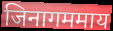
जिनागममाय